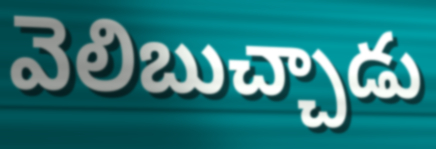
వెలిబుచ్చాడు